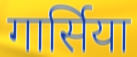
गार्सिया